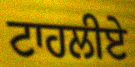
ਟਾਹਲੀਏ